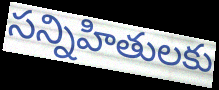
సన్నిహితులకు